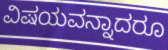
ವಿಷಯವನ್ನಾದರೂ